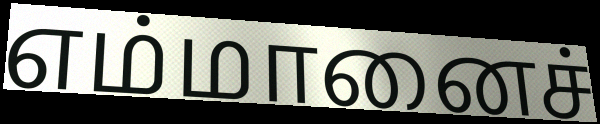
எம்மானைச்